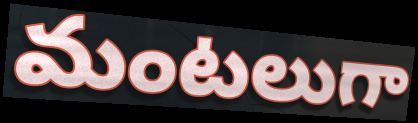
మంటలుగా